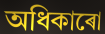
অধিকাৰো